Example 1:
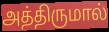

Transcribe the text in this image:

அத்திருமால்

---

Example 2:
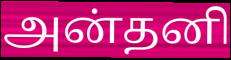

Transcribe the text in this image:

அன்தனி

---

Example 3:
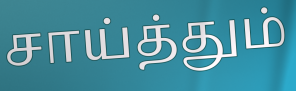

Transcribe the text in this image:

சாய்த்தும்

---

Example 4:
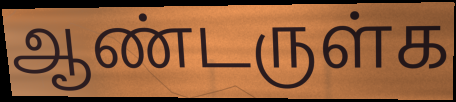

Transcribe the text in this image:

ஆண்டருள்க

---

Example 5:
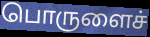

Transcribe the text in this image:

பொருளைச்